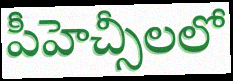
పీహెచ్సీలలో